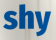
shy